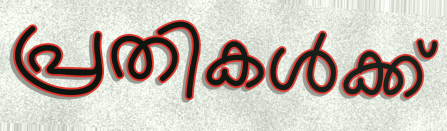
പ്രതികൾക്ക്